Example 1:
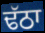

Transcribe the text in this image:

ਢੱਠਾ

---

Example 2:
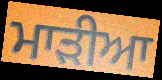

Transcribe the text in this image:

ਮਾੜੀਆ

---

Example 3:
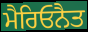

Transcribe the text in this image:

ਮੈਰਿਓਨੈਤ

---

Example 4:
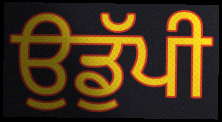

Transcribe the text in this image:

ਉਡੁੱਪੀ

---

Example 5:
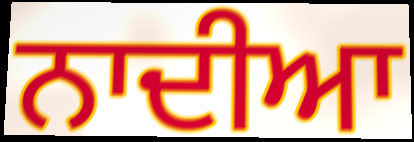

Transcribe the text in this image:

ਨਾਦੀਆ